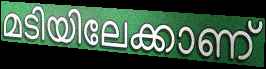
മടിയിലേക്കാണ്